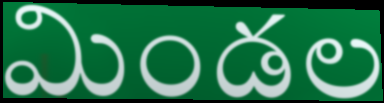
మిండల